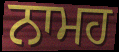
ਨਾਮਹ